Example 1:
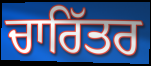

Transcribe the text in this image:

ਚਾਰਿੱਤਰ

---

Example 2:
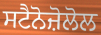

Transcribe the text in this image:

ਸਟੈਨੋਜ਼ੋਲੋਲ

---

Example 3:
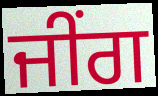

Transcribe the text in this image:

ਜੀਂਗ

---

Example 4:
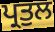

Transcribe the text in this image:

ਪ੍ਰਤੁਲ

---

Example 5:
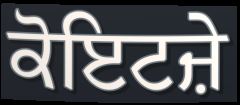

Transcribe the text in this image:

ਕੋਇਟਜ਼ੇ